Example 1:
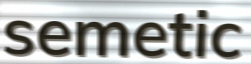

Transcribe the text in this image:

semetic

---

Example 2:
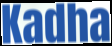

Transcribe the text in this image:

Kadha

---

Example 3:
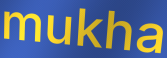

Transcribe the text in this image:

mukha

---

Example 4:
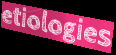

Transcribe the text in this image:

etiologies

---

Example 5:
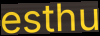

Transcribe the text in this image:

esthu